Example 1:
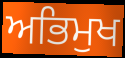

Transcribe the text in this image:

ਅਭਿਮੁਖ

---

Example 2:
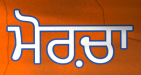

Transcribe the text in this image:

ਮੋਰ਼ਚਾ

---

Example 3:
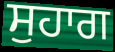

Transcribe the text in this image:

ਸੁਹਾਗ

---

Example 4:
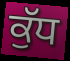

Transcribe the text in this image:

ਕੁੱਧ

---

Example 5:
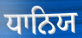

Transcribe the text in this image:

ਧਾਨਿਯ